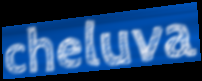
cheluva